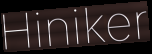
Hiniker